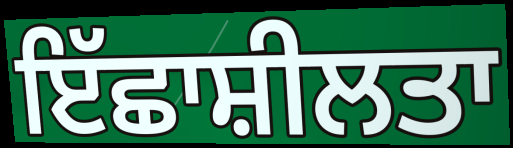
ਇੱਛਾਸ਼ੀਲਤਾ